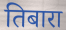
तिबारा